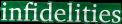
infidelities